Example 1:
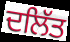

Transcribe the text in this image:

ਦਲਿੱਤ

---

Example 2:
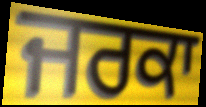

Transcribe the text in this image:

ਜਰਕਾ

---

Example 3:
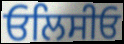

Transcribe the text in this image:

ਓਲਿਸੀਓ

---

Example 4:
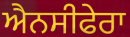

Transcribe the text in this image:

ਐਨਸੀਫੇਰਾ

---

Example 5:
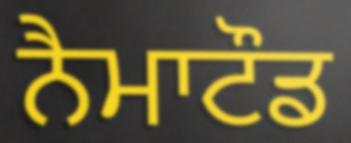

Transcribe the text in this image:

ਨੈਮਾਟੌਡ